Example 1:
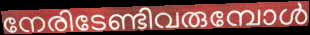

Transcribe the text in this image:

നേരിടേണ്ടിവരുമ്പോൾ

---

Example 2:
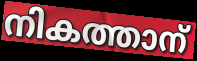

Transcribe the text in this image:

നികത്താന്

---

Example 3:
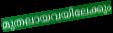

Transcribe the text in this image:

മുതലായവയിലേക്കും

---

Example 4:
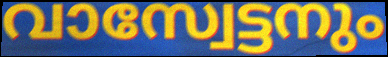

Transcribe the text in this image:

വാസ്വേട്ടനും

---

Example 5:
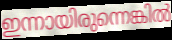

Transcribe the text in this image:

ഇന്നായിരുന്നെങ്കിൽ